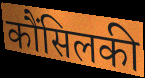
कौंसिलकी